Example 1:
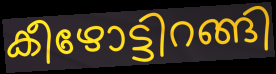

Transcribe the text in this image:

കീഴോട്ടിറങ്ങി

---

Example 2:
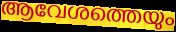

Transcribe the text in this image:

ആവേശത്തെയും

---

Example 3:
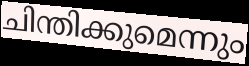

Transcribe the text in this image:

ചിന്തിക്കുമെന്നും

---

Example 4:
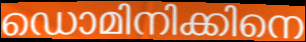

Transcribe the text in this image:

ഡൊമിനിക്കിനെ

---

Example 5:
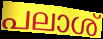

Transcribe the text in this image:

പലാശ്